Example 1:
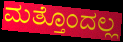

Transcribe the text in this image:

ಮತ್ತೊಂದಲ್ಲ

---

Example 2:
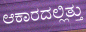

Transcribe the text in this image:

ಆಕಾರದಲ್ಲಿತ್ತು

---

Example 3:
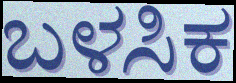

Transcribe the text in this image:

ಬಳಸಿಕ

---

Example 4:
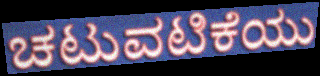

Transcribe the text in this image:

ಚಟುವಟಿಕೆಯು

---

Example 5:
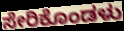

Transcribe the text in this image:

ಸೇರಿಕೊಂಡಳು